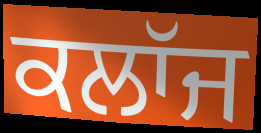
ਕਲਾੱਜ